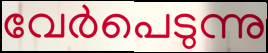
വേർപെടുന്നു